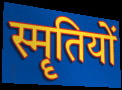
स्मॄतियों